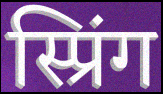
स्प्रिंग